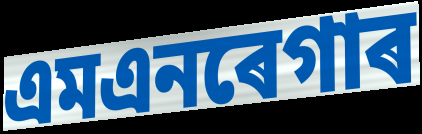
এমএনৰেগাৰ